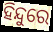
ହିନ୍ଦୁରେ